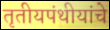
तृतीयपंथीयांचे